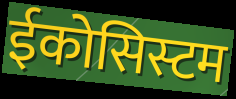
ईकोसिस्‍टम